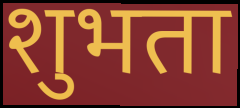
शुभता